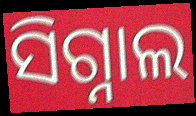
ସିଗ୍ନାଲ